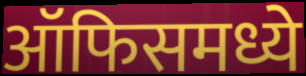
ऑफिसमध्ये